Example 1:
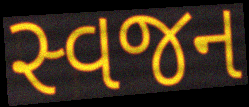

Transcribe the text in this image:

સ્વજન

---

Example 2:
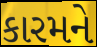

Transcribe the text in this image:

કારમને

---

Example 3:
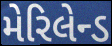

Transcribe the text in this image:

મેરિલેન્ડ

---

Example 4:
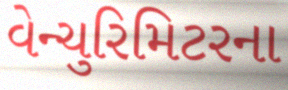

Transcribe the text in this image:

વેન્ચુરિમિટરના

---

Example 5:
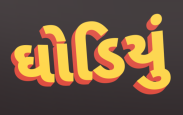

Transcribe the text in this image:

ઘોડિયું